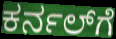
ಕರ್ನಲ್‌ಗೆ